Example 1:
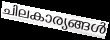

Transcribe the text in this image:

ചിലകാര്യങ്ങൾ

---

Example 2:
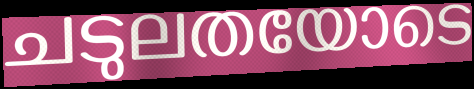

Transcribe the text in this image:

ചടുലതയോടെ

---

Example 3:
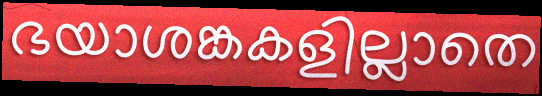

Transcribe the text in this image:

ഭയാശങ്കകളില്ലാതെ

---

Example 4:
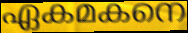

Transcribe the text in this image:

ഏകമകനെ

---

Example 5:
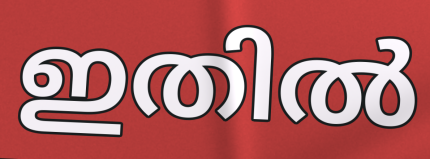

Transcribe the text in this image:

ഇതിൽ